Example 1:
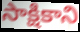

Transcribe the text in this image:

సాక్షికాని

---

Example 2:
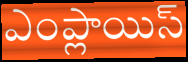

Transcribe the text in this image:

ఎంప్లాయిస్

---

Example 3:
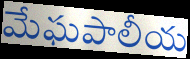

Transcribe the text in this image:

మేఘపాలీయ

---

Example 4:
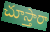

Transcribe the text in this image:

చూస్తారా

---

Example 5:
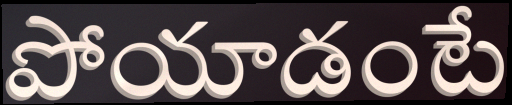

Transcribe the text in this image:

పోయాడంటే